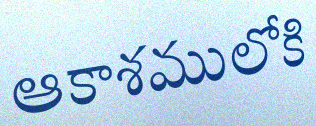
ఆకాశములోకి